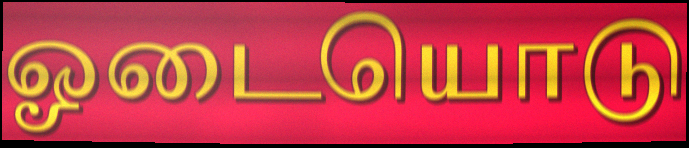
ஓடையொடு